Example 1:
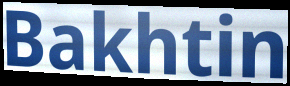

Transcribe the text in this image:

Bakhtin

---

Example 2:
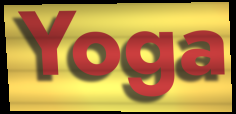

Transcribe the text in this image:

Yoga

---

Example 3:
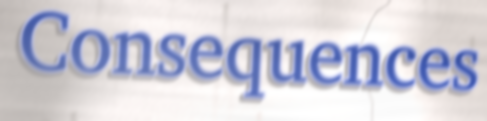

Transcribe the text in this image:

Consequences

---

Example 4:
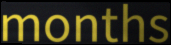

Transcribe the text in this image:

months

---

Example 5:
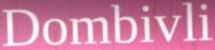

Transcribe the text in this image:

Dombivli